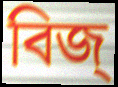
বিজ্